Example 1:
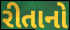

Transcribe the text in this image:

રીતાનો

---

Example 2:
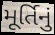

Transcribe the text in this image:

મૂર્તિનું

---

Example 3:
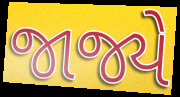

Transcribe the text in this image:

જાજ્યે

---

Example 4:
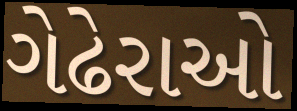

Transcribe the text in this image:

ગેઢેરાઓ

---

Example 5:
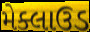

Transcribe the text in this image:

મેક્લાઉડ